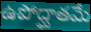
ఉపోద్ఘాతమే